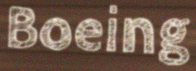
Boeing